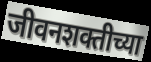
जीवनशक्तीच्या